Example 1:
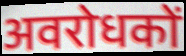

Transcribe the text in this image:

अवरोधकों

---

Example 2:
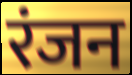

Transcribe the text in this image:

रंजन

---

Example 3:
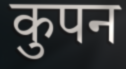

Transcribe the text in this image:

कुपन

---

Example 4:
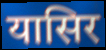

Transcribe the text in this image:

यासिर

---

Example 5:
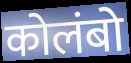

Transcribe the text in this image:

कोलंबो